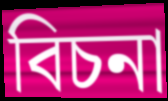
বিচনা